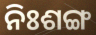
ନିଃଶଙ୍ଗ